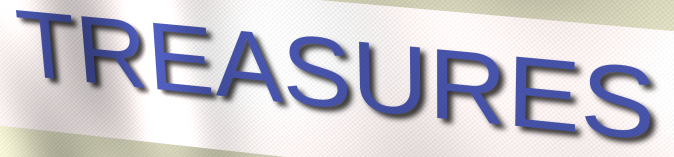
TREASURES